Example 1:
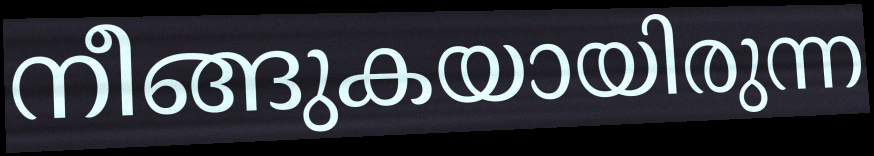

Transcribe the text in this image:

നീങ്ങുകയായിരുന്ന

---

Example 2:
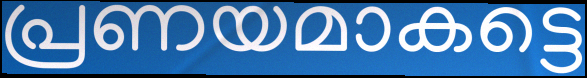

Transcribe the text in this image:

പ്രണയമാകട്ടെ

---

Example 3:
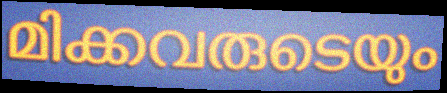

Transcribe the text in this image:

മിക്കവരുടെയും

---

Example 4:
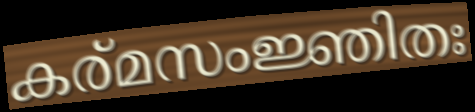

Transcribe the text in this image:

കര്മസംജ്ഞിതഃ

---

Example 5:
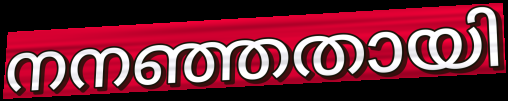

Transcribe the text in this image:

നനഞ്ഞതായി